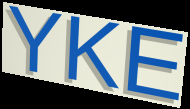
YKE